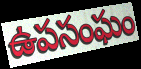
ఉపసంఘం